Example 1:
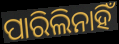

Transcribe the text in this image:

ପାରିଲିନାହିଁ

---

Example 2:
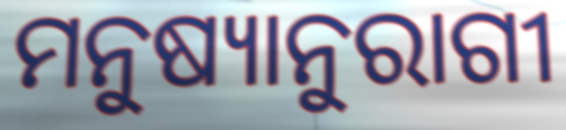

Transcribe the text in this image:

ମନୁଷ୍ୟାନୁରାଗୀ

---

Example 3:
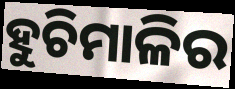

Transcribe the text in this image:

ହୁଚିମାଳିର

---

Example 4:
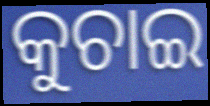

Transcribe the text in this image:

କୁଚାଇ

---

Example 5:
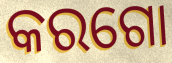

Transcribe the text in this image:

କରଗୋ